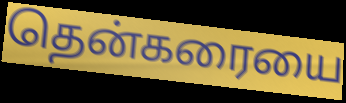
தென்கரையை